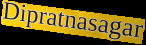
Dipratnasagar